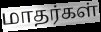
மாதர்கள்